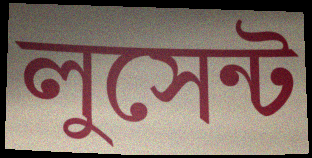
লুসেন্ট